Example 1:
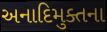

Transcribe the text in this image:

અનાદિમુક્તના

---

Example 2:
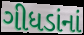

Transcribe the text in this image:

ગીધડાંનાં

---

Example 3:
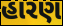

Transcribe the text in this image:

હારણ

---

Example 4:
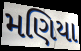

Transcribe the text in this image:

મણિયા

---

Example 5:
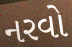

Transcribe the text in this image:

નરવો